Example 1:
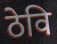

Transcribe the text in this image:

ठेवि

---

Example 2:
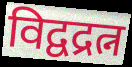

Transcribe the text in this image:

विद्वद्रत्न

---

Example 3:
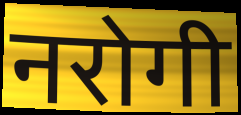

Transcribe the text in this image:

नरोगी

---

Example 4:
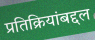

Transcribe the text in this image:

प्रतिक्रियांबद्दल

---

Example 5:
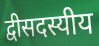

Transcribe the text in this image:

द्वीसदस्यीय